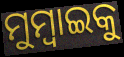
ମୁମ୍ୱାଇକୁ